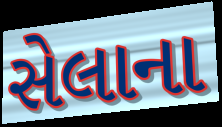
સેલાના